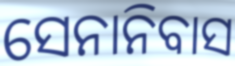
ସେନାନିବାସ